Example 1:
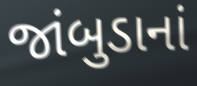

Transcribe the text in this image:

જાંબુડાનાં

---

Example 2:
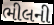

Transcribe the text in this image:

ભીલની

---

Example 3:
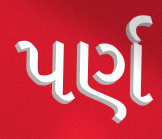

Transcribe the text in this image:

પર્ણ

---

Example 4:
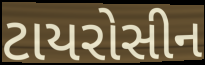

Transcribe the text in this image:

ટાયરોસીન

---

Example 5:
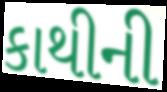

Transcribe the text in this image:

કાથીની